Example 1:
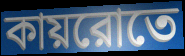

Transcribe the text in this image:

কায়রোতে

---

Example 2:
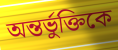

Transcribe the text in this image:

অন্তর্ভুক্তিকে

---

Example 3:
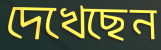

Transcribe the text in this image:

দেখেছেন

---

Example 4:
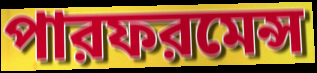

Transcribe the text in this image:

পারফরমেন্স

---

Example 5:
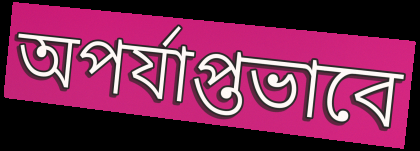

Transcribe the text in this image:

অপর্যাপ্তভাবে